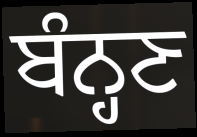
ਬੰਨ੍ਹਣ